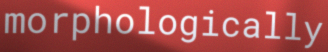
morphologically